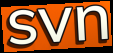
svn